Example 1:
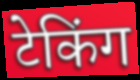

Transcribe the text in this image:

टेकिंग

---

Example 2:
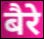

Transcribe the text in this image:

बैरे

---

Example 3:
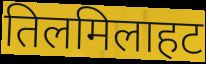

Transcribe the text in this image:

तिलमिलाहट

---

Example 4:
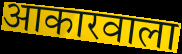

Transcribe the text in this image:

आकारवाला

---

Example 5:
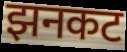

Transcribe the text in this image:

झनकट